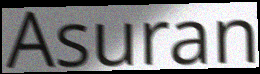
Asuran